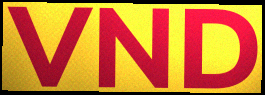
VND